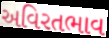
અવિરતભાવ